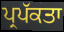
ਪ੍ਰਪੱਕਤਾ